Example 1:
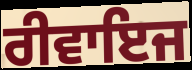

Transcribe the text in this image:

ਰੀਵਾਇਜ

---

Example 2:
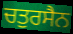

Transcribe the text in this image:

ਚਤੁਰਸੈਨ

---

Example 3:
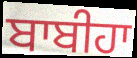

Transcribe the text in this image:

ਬਾਬੀਹਾ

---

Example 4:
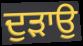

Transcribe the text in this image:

ਦੁੜਾਉ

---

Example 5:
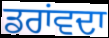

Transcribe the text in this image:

ਡਰਾਂਵਦਾ